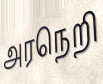
அரநெறி